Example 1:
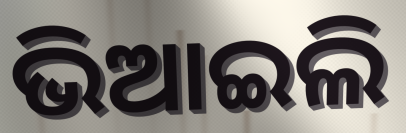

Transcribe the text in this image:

ଭିଆଇଲି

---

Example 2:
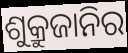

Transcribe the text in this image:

ଶୁକ୍ରୁଜାନିର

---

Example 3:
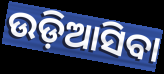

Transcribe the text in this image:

ଉଡ଼ିଆସିବା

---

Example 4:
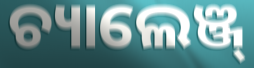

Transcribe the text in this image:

ଚ୍ୟାଲେଞ୍ଜ୍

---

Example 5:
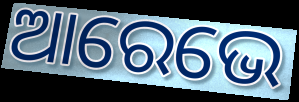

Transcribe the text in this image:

ଆରେଭେ